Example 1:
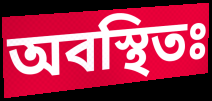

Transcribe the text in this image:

অবস্থিতঃ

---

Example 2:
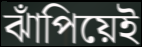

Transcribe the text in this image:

ঝাঁপিয়েই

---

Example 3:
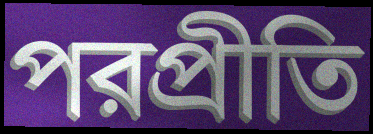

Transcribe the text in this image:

পরপ্রীতি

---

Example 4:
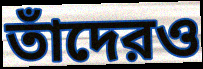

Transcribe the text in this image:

তাঁদেরও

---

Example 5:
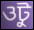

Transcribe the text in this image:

ওটু